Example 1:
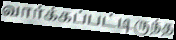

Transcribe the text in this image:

வார்க்கப்பட்டிருந்த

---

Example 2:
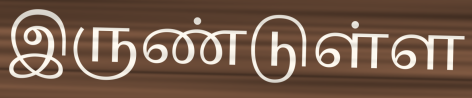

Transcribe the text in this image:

இருண்டுள்ள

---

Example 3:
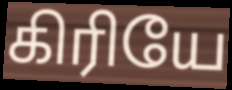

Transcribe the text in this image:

கிரியே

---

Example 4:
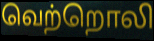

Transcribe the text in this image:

வெற்றொலி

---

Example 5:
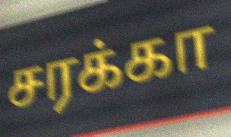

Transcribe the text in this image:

சரக்கா